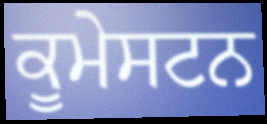
ਕੂਮੇਸਟਨ